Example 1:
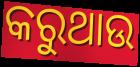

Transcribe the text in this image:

କରୁଥାଉ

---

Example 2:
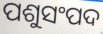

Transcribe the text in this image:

ପଶୁସଂପଦ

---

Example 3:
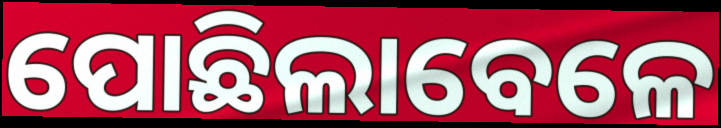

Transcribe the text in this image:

ପୋଛିଲାବେଳେ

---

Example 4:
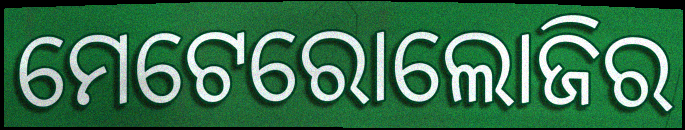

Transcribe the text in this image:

ମେଟେରୋଲୋଜିର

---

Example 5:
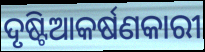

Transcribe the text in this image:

ଦୃଷ୍ଟିଆକର୍ଷଣକାରୀ